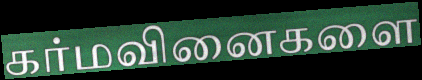
கர்மவினைகளை